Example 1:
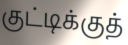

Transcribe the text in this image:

குட்டிக்குத்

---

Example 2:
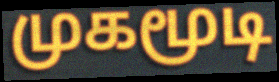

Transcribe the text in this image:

முகமூடி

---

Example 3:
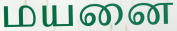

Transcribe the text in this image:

மயனை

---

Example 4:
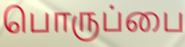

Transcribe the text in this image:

பொருப்பை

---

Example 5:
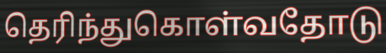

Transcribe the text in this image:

தெரிந்துகொள்வதோடு